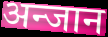
अन्जान